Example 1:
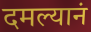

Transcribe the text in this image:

दमल्यानं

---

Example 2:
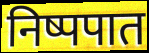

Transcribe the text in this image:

निष्पपात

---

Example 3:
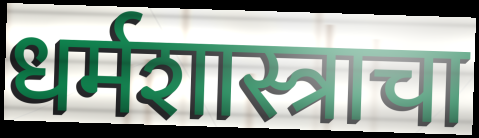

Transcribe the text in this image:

धर्मशास्त्राचा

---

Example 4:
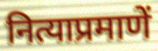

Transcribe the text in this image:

नित्याप्रमाणें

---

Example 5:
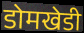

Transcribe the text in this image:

डोमखेडी